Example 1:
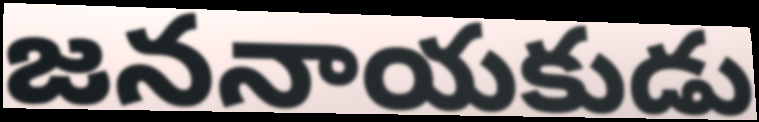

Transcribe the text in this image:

జననాయకుడు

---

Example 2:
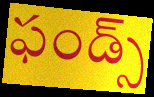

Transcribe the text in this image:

ఫండ్స్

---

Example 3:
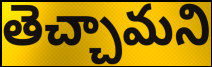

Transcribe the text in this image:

తెచ్చామని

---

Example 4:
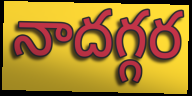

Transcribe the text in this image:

నాదగ్గర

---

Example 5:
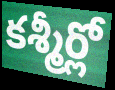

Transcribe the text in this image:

కశ్మీర్లో